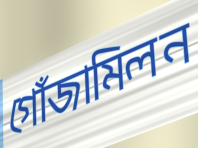
গোঁজামিলন